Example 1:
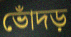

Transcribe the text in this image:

ভোঁদড়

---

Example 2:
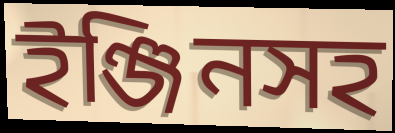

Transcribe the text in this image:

ইঞ্জিনসহ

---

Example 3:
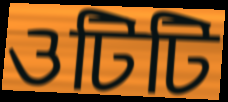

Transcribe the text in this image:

ওটিটি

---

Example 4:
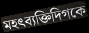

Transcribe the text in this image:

মহৎব্যক্তিদিগকে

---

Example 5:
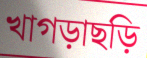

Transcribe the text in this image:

খাগড়াছড়ি